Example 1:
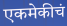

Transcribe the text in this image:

एकमेकीचं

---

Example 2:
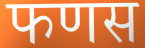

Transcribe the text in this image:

फणस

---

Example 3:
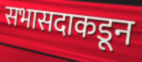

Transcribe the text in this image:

सभासदाकडून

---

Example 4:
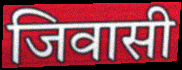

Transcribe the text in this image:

जिवासी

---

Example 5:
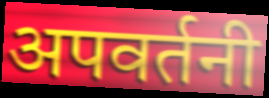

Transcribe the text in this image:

अपवर्तनी